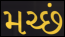
મચ્છં